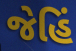
જેહિં